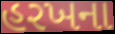
હરખના